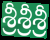
శ్రీశ్రీశ్రీ